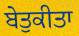
ਬੇਤੁਕੀਤਾ